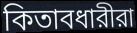
কিতাবধারীরা